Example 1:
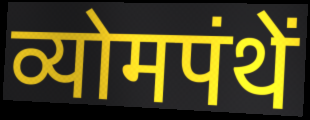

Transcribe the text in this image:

व्योमपंथें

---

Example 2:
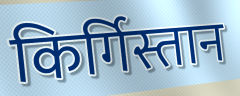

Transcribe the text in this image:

किर्गिस्तान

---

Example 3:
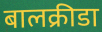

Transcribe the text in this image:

बालक्रीडा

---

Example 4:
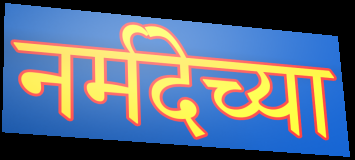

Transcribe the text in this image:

नर्मदेच्या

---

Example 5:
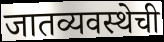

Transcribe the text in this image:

जातव्यवस्थेची